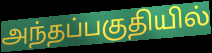
அந்தப்பகுதியில்